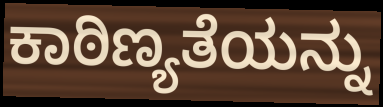
ಕಾಠಿಣ್ಯತೆಯನ್ನು